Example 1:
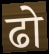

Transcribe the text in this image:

ढो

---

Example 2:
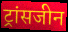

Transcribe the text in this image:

ट्रांसजीन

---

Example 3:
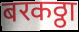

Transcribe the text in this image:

बरकठ्ठा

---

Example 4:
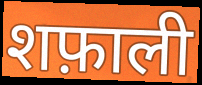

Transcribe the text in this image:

शफ़ाली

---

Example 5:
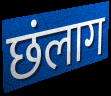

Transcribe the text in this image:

छंलाग